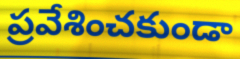
ప్రవేశించకుండా